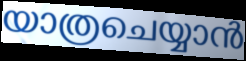
യാത്രചെയ്യാൻ